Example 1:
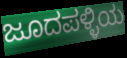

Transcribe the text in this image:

ಜೂದಪಳ್ಳಿಯ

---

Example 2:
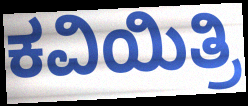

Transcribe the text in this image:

ಕವಿಯಿತ್ರಿ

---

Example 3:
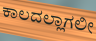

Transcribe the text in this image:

ಕಾಲದಲ್ಲಾಗಲೀ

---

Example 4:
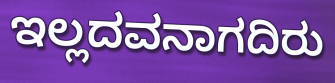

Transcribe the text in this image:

ಇಲ್ಲದವನಾಗದಿರು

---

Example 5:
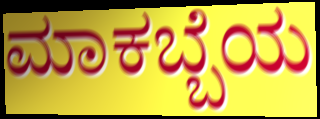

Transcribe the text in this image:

ಮಾಕಬ್ಬೆಯ